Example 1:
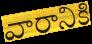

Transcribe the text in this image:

వారానికి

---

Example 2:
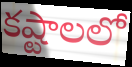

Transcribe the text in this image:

కష్టాలలో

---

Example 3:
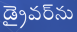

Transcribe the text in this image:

డ్రైవర్‌ను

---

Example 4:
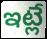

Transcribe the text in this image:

ఇట్లే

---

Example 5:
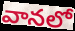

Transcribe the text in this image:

వానలో